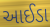
આઈડા